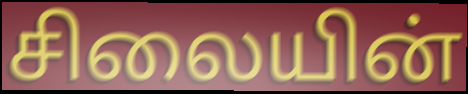
சிலையின்